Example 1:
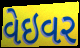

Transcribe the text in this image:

વેઇવર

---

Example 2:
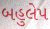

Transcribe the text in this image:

બહુલેપ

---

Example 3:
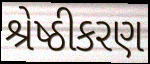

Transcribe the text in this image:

શ્રેષ્ઠીકરણ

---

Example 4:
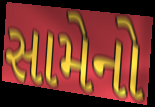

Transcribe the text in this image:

સામેનો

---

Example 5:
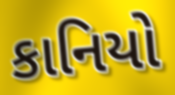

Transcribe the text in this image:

કાનિયો